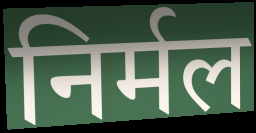
निर्मल